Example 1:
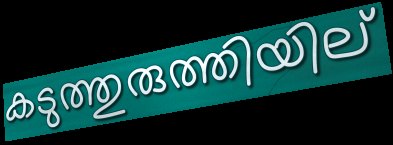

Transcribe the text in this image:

കടുത്തുരുത്തിയില്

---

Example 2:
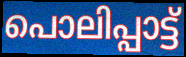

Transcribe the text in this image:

പൊലിപ്പാട്ട്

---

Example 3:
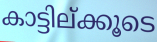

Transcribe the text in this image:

കാട്ടില്ക്കൂടെ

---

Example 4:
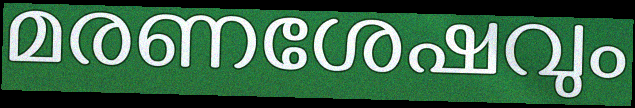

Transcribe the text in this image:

മരണശേഷവും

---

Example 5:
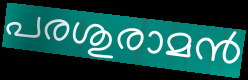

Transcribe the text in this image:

പരശുരാമൻ